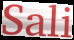
Sali